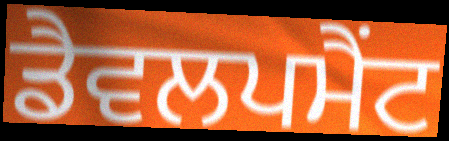
ਡੈਵਲਪਮੈਂਟ